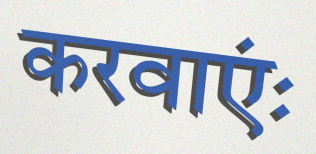
करवाएंः